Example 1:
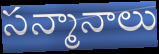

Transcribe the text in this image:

సన్మానాలు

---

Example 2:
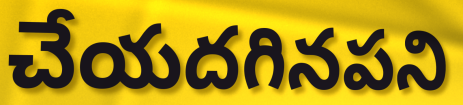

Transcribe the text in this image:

చేయదగినపని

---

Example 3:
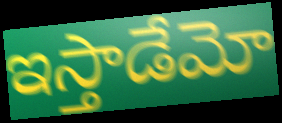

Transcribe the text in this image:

ఇస్తాడేమో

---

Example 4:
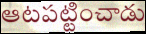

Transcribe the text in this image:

ఆటపట్టించాడు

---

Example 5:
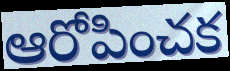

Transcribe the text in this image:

ఆరోపించక